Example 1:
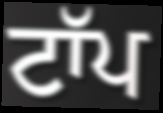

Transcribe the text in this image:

ਟਾੱਪ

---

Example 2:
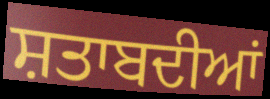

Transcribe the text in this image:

ਸ਼ਤਾਬਦੀਆਂ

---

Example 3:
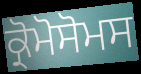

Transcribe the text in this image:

ਕ੍ਰੋਮੋਸੋਮਸ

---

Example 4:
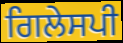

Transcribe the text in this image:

ਗਿਲੇਸਪੀ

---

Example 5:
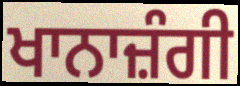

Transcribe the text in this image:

ਖਾਨਾਜ਼ੰਗੀ